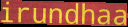
irundhaa